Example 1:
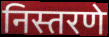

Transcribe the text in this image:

निस्तरणे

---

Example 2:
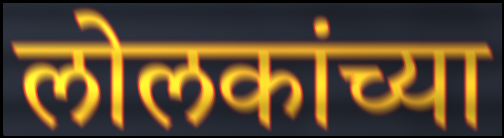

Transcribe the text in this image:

लोलकांच्या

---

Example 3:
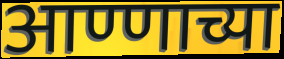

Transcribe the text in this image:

आण्णाच्या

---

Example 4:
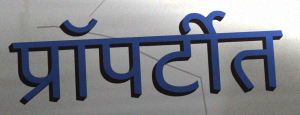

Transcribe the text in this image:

प्रॉपर्टीत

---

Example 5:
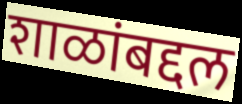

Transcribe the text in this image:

शाळांबद्दल